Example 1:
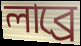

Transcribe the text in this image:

লাব্রে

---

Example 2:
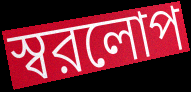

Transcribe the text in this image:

স্বরলোপ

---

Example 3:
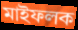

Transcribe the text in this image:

মাইফলক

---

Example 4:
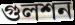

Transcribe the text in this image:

গুলশন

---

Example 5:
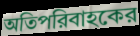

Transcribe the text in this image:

অতিপরিবাহকের